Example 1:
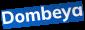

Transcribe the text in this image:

Dombeya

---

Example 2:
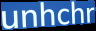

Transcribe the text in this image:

unhchr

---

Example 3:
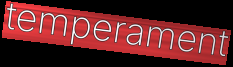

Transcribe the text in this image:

temperament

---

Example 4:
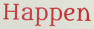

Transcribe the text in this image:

Happen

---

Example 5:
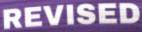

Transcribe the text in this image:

REVISED